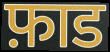
फ़ाड